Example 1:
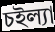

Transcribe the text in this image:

চইল্যা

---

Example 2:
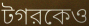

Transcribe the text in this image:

টগরকেও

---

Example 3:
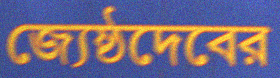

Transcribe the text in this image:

জ্যেষ্ঠদেবের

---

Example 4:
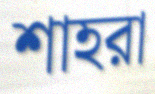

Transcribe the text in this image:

শাহরা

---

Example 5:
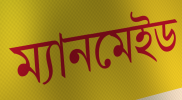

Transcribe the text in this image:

ম্যানমেইড